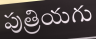
పుత్రియగు